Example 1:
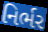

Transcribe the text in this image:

નિર્ભર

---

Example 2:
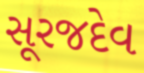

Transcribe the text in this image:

સૂરજદેવ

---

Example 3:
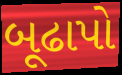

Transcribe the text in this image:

બૂઢાપો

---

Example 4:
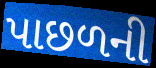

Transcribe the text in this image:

પાછળની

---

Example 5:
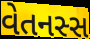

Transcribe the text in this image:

વેતનસ્સ